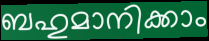
ബഹുമാനിക്കാം